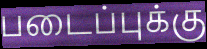
படைப்புக்கு